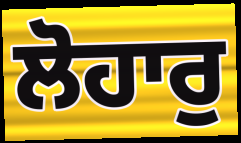
ਲੋਹਾਰੁ